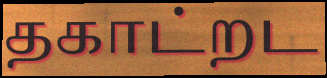
தகாட்றட